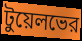
টুয়েলভের